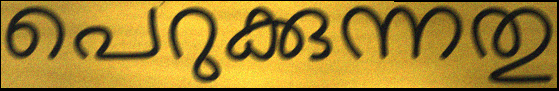
പെറുക്കുന്നതു